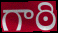
గాఠి